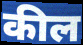
कील